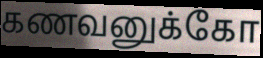
கணவனுக்கோ